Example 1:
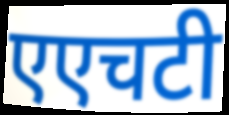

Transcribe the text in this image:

एएचटी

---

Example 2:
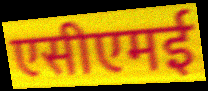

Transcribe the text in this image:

एसीएमई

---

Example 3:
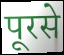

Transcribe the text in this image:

पूरसे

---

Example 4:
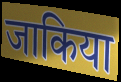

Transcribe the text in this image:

जाकिया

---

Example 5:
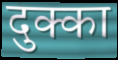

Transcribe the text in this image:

दुक्का